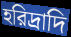
হরিদ্রাদি